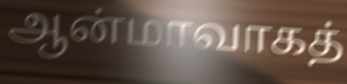
ஆன்மாவாகத்